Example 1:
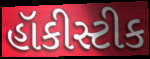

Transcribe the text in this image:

હૉકીસ્ટીક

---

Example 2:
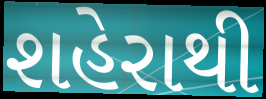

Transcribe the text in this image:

શહેરાથી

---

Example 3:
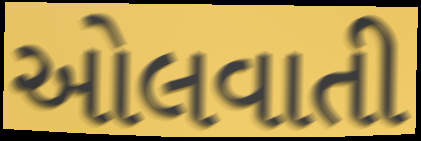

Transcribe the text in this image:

ઓલવાતી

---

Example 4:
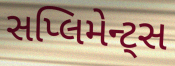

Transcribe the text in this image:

સપ્લિમેન્ટ્સ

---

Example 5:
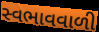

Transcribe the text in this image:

સ્વભાવવાળી